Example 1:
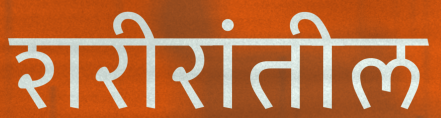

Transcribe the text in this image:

शरीरांतील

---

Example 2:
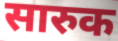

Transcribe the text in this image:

सारुक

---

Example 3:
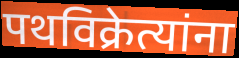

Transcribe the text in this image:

पथविक्रेत्यांना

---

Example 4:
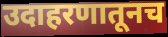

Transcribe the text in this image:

उदाहरणातूनच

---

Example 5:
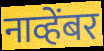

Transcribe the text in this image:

नाव्हेंबर